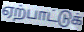
ஏற்பாட்டுக்